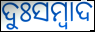
ଦୁଃସମ୍ୱାଦ